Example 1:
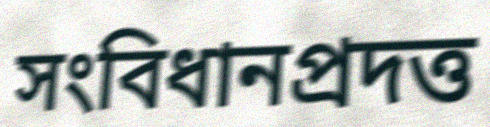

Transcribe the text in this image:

সংবিধানপ্রদত্ত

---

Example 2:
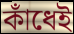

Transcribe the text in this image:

কাঁধেই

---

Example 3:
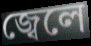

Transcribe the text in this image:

জ্বেলে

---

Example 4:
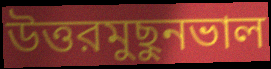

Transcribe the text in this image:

উত্তরমুছুনভাল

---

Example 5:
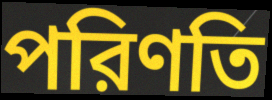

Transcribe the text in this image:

পরিণতি